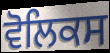
ਵੋਲਿਕਸ